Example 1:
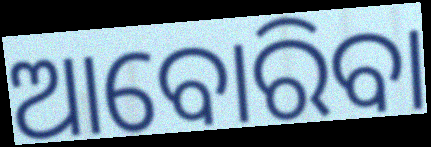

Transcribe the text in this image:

ଆବୋରିବା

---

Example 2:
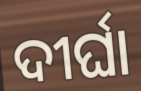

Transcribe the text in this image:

ଦୀର୍ଘା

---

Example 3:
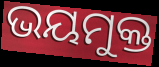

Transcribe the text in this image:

ଭୟମୁକ୍ତ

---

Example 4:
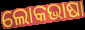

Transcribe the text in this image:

ଲୋକଭାଷା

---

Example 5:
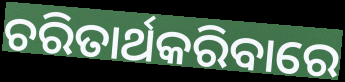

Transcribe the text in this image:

ଚରିତାର୍ଥକରିବାରେ